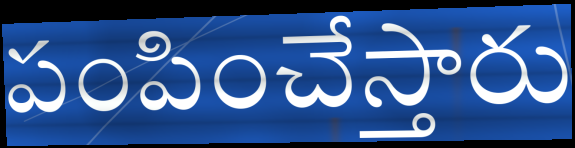
పంపించేస్తారు